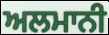
ਅਲਮਾਨੀ